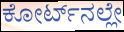
ಕೋರ್ಟ್‌ನಲ್ಲೇ